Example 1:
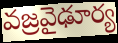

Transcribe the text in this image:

వజ్రవైఢూర్య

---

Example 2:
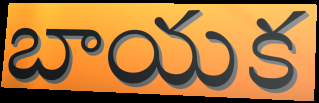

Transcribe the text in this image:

బాయక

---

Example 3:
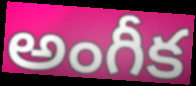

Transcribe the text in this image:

అంగీక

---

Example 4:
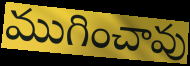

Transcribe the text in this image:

ముగించావు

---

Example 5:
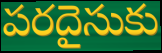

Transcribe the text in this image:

పరదైసుకు